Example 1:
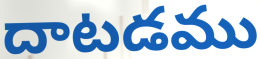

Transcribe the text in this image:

దాటడము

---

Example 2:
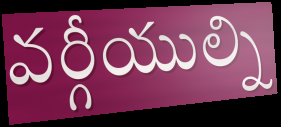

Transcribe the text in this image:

వర్గీయుల్ని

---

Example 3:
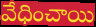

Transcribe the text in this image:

వేధించాయి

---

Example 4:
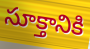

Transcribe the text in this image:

సూక్తానికి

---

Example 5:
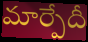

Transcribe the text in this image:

మార్పేదీ